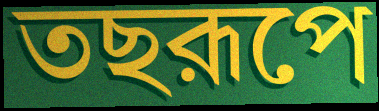
তছরূপে